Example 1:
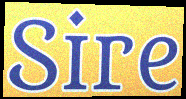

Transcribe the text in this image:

Sire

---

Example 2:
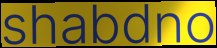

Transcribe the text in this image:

shabdno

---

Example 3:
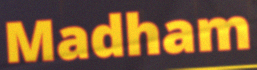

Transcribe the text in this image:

Madham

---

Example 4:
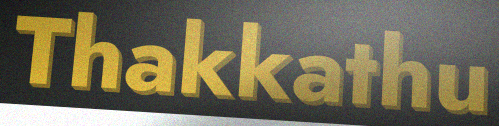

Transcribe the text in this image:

Thakkathu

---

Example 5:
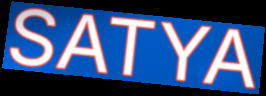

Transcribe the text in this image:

SATYA